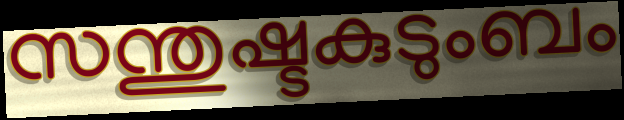
സന്തുഷ്ടകുടുംബം